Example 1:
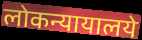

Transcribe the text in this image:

लोकन्यायालये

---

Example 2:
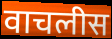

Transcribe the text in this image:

वाचलीस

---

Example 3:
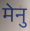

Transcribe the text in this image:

मेनु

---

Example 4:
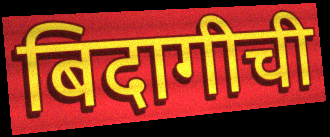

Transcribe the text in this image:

बिदागीची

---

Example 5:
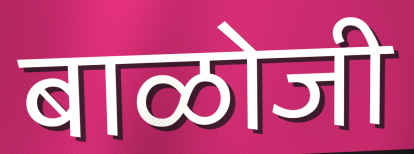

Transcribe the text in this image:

बाळोजी